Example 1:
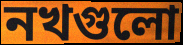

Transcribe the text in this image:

নখগুলো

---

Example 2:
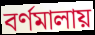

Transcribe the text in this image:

বর্ণমালায়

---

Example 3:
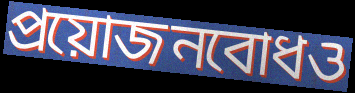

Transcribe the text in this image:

প্রয়োজনবোধও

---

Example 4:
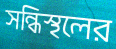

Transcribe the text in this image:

সন্ধিস্থলের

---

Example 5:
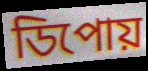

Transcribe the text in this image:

ডিপোয়